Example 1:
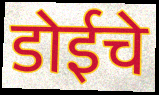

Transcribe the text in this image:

डोईचे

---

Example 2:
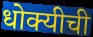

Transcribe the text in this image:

धोक्यीची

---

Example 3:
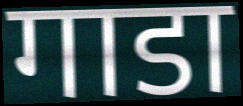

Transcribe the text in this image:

गाडा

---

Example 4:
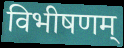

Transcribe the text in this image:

विभीषणम्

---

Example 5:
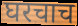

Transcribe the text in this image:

घरचाच